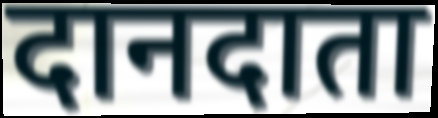
दानदाता